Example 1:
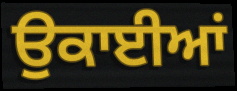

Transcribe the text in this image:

ਉਕਾਈਆਂ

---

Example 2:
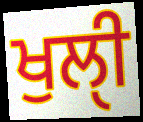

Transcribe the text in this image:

ਖੁਲੀੑ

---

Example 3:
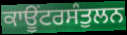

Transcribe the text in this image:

ਕਾਊਂਟਰਸੰਤੁਲਨ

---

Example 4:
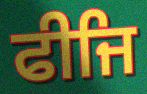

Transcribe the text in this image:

ਫੀਜਿ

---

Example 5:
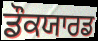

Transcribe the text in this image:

ਡੌਕਯਾਰਡ